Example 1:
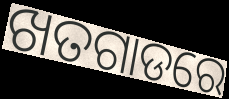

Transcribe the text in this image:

ଖତଗାଡରେ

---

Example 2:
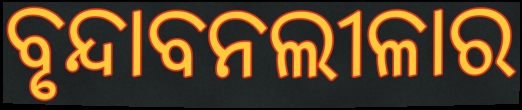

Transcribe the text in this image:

ବୃନ୍ଦାବନଲୀଳାର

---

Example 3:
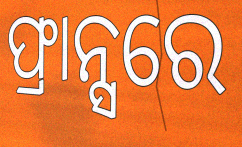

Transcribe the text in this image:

ଫ୍ରାନ୍ସରେ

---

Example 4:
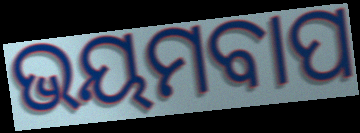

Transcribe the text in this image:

ଭୟମବାପ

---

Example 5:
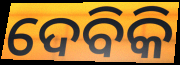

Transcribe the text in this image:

ଦେବିକି